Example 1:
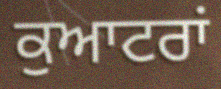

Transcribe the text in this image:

ਕੁਆਟਰਾਂ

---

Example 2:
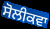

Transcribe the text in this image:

ਸੋਲੀਕਵਾ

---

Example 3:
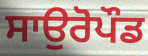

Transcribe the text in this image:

ਸਾਉਰੋਪੌਡ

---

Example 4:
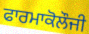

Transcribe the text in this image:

ਫਾਰਮਾਕੋਲੌਜੀ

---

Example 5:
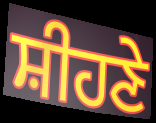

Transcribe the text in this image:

ਸ਼ੀਹਣੇ